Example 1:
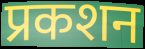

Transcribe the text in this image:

प्रकशन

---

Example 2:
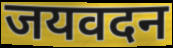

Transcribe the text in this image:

जयवदन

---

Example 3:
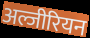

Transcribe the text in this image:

अल्जीरियन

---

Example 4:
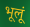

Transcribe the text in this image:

भूलूं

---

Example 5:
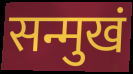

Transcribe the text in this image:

सन्मुखं